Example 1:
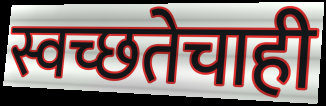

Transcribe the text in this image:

स्वच्छतेचाही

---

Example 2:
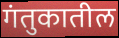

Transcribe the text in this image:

गंतुकातील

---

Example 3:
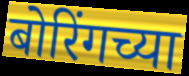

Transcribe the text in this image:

बोरिंगच्या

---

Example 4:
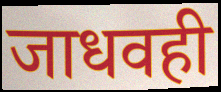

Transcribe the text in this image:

जाधवही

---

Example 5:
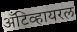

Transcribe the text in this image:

अँटिव्हायरल